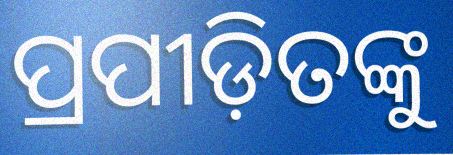
ପ୍ରପୀଡ଼ିତଙ୍କୁ